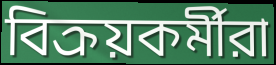
বিক্রয়কর্মীরা